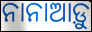
ନାନାଆଡ଼ୁ